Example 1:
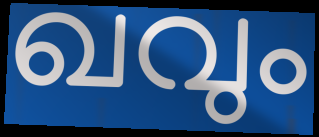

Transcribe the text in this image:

ഖവും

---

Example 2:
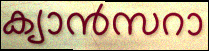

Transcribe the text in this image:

ക്യാൻസറാ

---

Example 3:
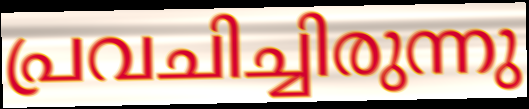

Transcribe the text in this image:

പ്രവചിച്ചിരുന്നു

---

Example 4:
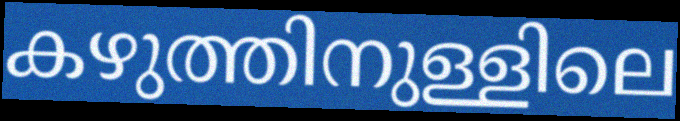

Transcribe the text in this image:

കഴുത്തിനുള്ളിലെ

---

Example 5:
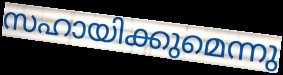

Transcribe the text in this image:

സഹായിക്കുമെന്നു